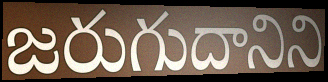
జరుగుదానిని